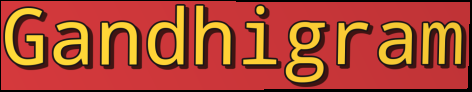
Gandhigram